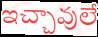
ఇచ్చావులే